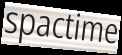
spactime